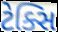
ટેક્સિ